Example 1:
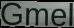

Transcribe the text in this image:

Gmel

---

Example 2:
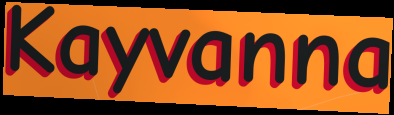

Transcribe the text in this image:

Kayvanna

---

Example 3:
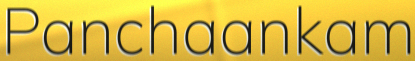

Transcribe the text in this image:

Panchaankam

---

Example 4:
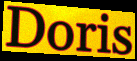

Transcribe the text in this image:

Doris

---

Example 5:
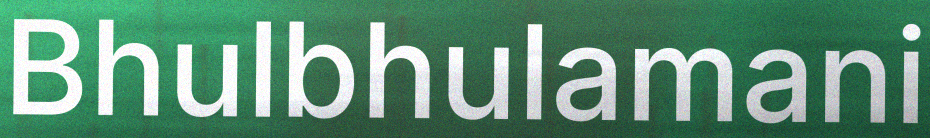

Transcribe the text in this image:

Bhulbhulamani